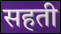
सहती